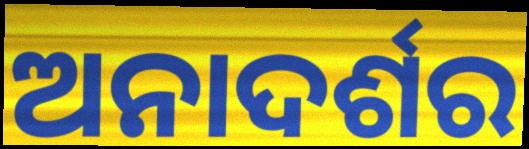
ଅନାଦର୍ଶର